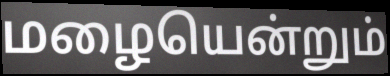
மழையென்றும்